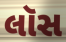
લૉસ